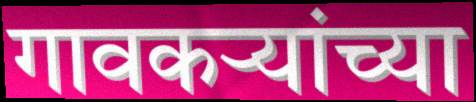
गावकऱ्यांच्या